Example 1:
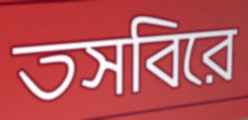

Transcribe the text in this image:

তসবিরে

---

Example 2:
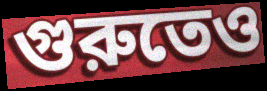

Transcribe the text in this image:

গুরুতেও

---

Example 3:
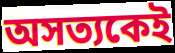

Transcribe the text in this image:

অসত্যকেই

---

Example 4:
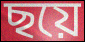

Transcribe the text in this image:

ছয়ে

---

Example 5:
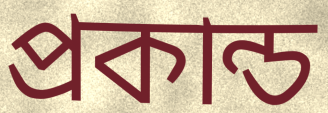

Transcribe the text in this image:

প্রকান্ড